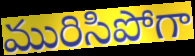
మురిసిపోగా